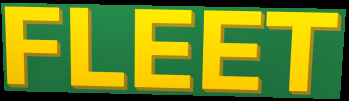
FLEET